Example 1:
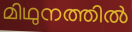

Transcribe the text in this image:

മിഥുനത്തിൽ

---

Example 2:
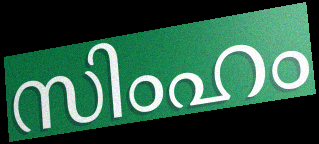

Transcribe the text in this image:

സിംഹം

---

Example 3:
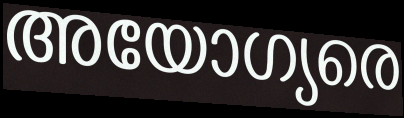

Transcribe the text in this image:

അയോഗ്യരെ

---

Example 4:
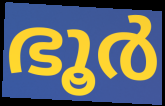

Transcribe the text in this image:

ഭൂർ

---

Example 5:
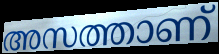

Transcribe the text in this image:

അസത്താണ്